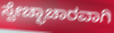
ಸ್ವೇಚ್ಛಾಚಾರವಾಗಿ